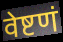
वेष्टणं